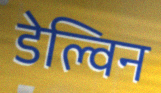
डेल्विन